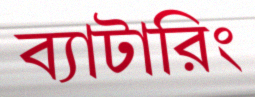
ব্যাটারিং